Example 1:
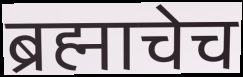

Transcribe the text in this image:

ब्रह्माचेच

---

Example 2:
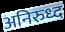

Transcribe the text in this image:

अनिरुध्द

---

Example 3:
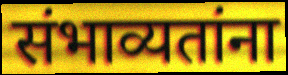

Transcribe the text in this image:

संभाव्यतांना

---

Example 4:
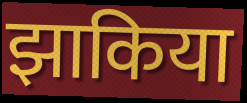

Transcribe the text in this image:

झाकिया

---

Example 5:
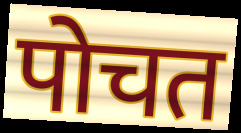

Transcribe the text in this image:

पोचत